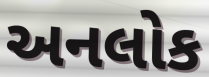
અનલોક